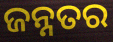
ଜନ୍ନତର